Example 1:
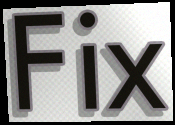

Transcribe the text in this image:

Fix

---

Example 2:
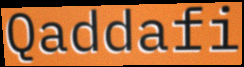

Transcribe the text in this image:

Qaddafi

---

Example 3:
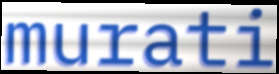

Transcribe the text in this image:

murati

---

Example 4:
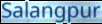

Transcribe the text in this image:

Salangpur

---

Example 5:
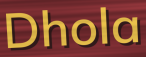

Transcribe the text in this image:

Dhola